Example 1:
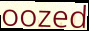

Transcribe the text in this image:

oozed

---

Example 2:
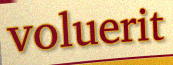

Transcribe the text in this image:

voluerit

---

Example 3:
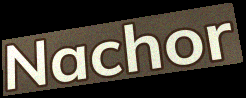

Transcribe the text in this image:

Nachor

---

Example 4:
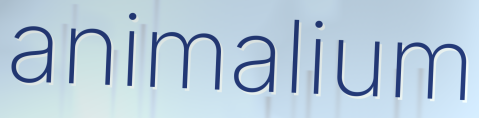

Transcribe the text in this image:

animalium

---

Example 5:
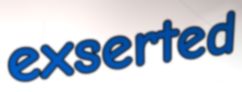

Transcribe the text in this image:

exserted